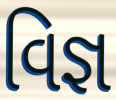
વિજ્ઞ